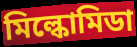
মিল্কোমিডা